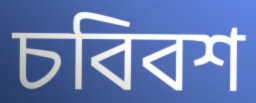
চবিবশ